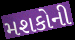
મશકોની